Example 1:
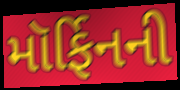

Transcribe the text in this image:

મૉર્ફિનની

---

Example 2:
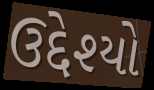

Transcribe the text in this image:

ઉદ્દેશ્યો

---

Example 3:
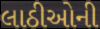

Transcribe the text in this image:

લાઠીઓની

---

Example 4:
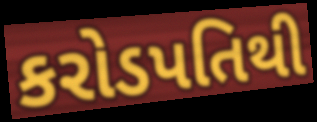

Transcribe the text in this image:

કરોડપતિથી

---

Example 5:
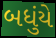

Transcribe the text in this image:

બધુંયે